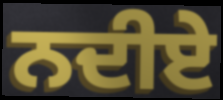
ਨਦੀਏ